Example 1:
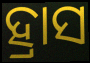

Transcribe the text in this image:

ହ୍ରାସ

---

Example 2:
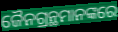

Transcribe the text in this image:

ଜୈନଗ୍ରନ୍ଥମାନଙ୍କରେ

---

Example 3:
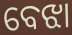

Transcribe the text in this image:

ବେଝା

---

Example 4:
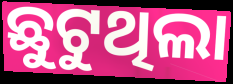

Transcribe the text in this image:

ଛୁଟୁଥିଲା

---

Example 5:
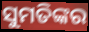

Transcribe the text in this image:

ସୁମତିଙ୍କର